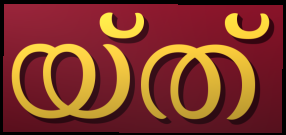
യ്ത്